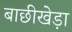
बाछीखेड़ा